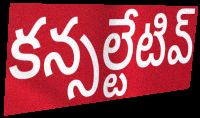
కన్సల్టేటివ్